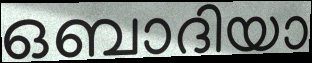
ഒബാദിയാ